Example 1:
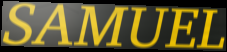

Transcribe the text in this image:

SAMUEL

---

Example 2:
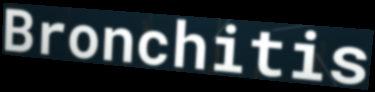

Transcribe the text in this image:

Bronchitis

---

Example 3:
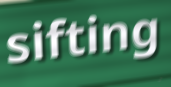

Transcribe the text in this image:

sifting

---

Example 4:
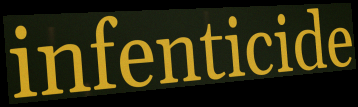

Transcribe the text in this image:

infenticide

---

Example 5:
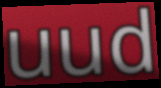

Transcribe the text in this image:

uud